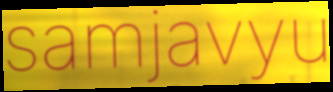
samjavyu